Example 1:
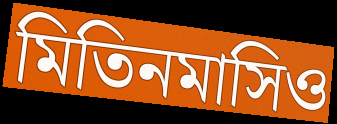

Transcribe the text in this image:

মিতিনমাসিও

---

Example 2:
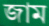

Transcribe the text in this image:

জাম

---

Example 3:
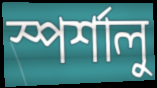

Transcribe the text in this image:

স্পর্শালু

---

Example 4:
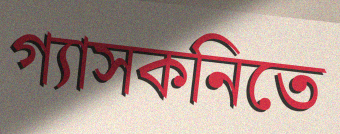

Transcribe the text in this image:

গ্যাসকনিতে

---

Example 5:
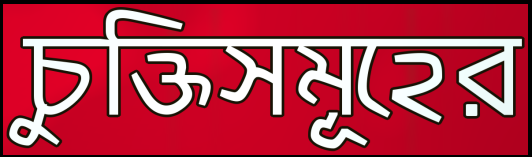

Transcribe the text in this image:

চুক্তিসমূহের